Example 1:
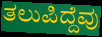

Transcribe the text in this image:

ತಲುಪಿದ್ದೆವು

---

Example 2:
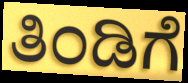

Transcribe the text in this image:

ತಿಂಡಿಗೆ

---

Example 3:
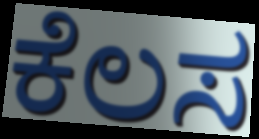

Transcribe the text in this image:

ಕೆಲಸ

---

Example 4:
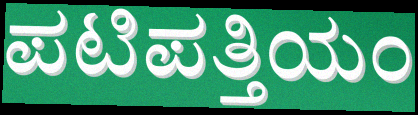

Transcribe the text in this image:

ಪಟಿಪತ್ತಿಯಂ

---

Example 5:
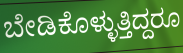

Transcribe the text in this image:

ಬೇಡಿಕೊಳ್ಳುತ್ತಿದ್ದರೂ